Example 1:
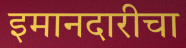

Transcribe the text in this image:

इमानदारीचा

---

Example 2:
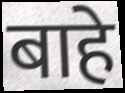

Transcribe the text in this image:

बाहे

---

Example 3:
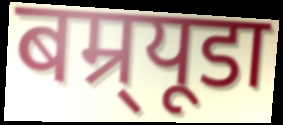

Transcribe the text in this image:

बम्र्यूडा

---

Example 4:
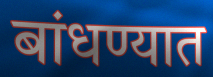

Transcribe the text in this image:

बांधण्यात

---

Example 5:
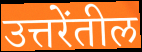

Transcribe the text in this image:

उत्तरेंतील